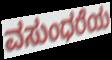
ವಸುಂಧರೆಯ